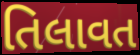
તિલાવત